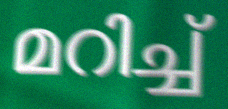
മറിച്ച്